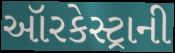
ઑરકેસ્ટ્રાની